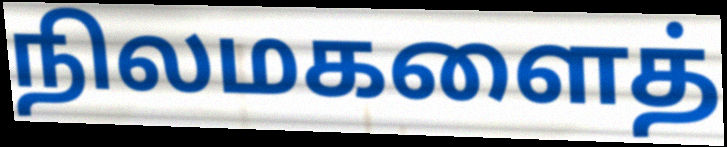
நிலமகளைத்